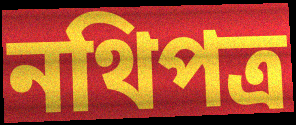
নথিপত্র